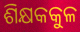
ଶିକ୍ଷକକୁଳ